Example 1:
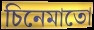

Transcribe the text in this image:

চিনেমাতো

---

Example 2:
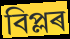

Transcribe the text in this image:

বিপ্লৰ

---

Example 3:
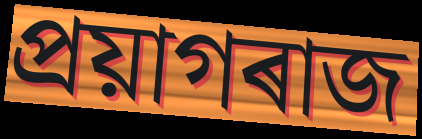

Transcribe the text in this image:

প্ৰয়াগৰাজ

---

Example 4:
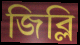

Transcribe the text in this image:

জিব্লি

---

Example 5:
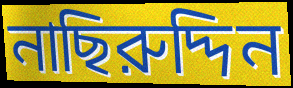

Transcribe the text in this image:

নাছিৰুদ্দিন